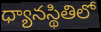
ధ్యానస్థితిలో